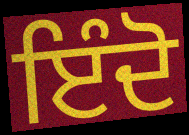
ਇੰਦੋ